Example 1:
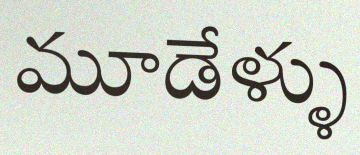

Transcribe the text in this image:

మూడేళ్ళు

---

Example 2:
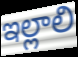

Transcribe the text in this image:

ఇల్లాలి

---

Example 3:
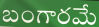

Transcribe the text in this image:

బంగారమే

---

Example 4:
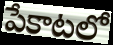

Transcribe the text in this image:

పేకాటలో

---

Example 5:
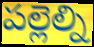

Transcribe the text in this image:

పల్లెల్ని